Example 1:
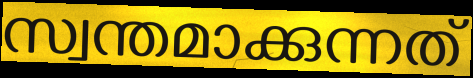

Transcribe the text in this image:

സ്വന്തമാക്കുന്നത്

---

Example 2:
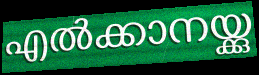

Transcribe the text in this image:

എൽക്കാനയ്ക്കു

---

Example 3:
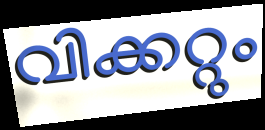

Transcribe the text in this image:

വിക്കറ്റും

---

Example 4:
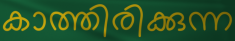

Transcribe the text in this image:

കാത്തിരിക്കുന്ന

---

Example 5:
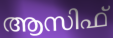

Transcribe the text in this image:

ആസിഫ്